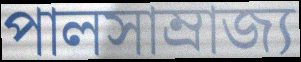
পালসাম্রাজ্য